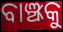
ବାଞ୍ଝକୁ